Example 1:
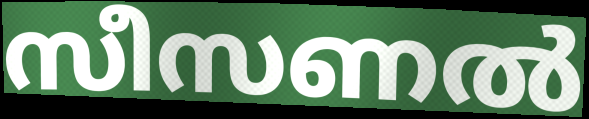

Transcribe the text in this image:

സീസണൽ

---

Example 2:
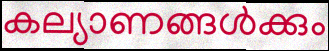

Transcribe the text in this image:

കല്യാണങ്ങൾക്കും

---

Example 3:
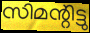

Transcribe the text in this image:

സിമന്റിട്ടു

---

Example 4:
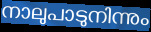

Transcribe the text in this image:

നാലുപാടുനിന്നും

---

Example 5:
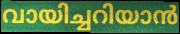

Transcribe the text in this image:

വായിച്ചറിയാൻ